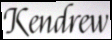
Kendrew